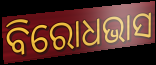
ବିରୋଧଭାସ